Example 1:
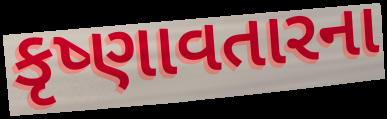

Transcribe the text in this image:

કૃષ્ણાવતારના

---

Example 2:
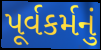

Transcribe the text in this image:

પૂર્વકર્મનું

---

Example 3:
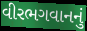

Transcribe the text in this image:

વીરભગવાનનું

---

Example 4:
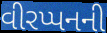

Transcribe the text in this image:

વીરપ્પનની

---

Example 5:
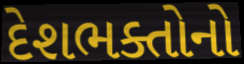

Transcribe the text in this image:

દેશભક્તોનો